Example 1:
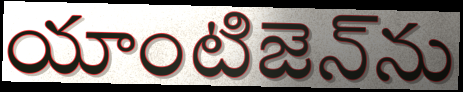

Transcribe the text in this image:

యాంటిజెన్‌ను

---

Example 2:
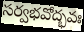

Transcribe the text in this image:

సర్వభవోద్భవః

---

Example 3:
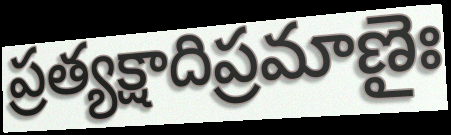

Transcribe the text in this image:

ప్రత్యక్షాదిప్రమాణైః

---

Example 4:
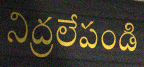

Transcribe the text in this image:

నిద్రలేపండి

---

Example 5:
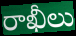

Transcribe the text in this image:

రాఖీలు